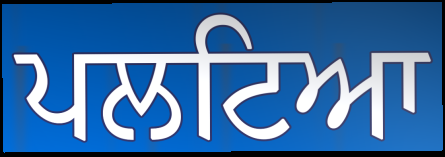
ਪਲਟਿਆ